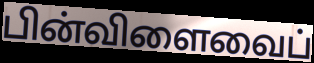
பின்விளைவைப்